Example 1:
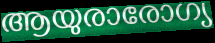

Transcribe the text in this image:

ആയുരാരോഗ്യ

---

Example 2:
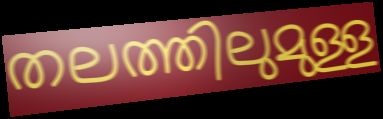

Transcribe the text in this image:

തലത്തിലുമുള്ള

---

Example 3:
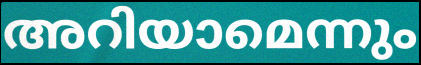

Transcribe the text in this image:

അറിയാമെന്നും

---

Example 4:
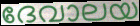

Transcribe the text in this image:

ദേവാലയ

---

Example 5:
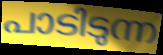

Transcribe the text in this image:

പാടിടുന്ന